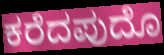
ಕರೆದಪುದೊ